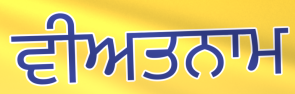
ਵੀਅਤਨਾਮ